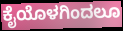
ಕೈಯೊಳಗಿಂದಲೂ